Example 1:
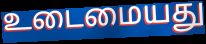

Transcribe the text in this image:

உடைமையது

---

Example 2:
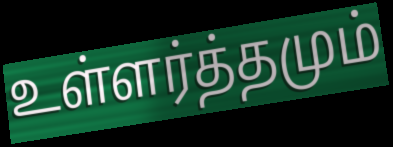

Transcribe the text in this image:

உள்ளர்த்தமும்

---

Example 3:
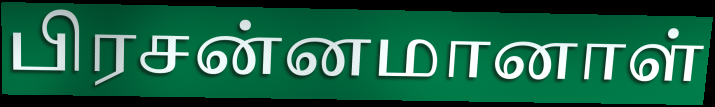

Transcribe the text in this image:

பிரசன்னமானாள்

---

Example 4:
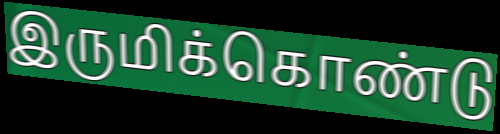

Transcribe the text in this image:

இருமிக்கொண்டு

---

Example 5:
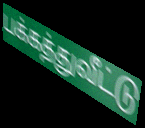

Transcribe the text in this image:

பக்கத்துவீட்டு